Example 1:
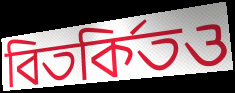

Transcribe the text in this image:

বিতর্কিতও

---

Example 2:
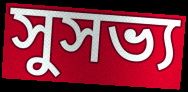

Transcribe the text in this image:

সুসভ্য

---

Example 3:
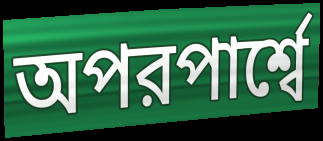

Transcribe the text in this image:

অপরপার্শ্বে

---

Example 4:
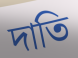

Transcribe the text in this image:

দাতি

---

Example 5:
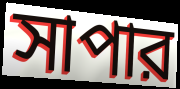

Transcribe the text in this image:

সাপার